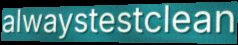
alwaystestclean